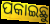
ପକାଇଛୁ